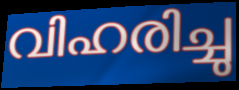
വിഹരിച്ചു